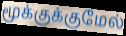
மூக்குக்குமேல்